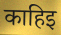
काहिइ